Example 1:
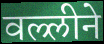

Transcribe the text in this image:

वल्लीने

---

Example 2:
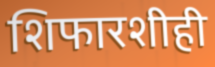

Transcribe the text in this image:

शिफारशीही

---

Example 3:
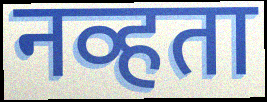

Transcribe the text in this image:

नव्हता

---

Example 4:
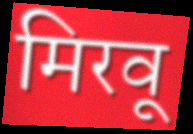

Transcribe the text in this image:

मिरवू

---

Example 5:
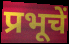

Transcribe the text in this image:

प्रभूचें